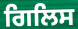
ਗਿਲਿਸ